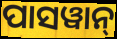
ପାସୱାନ୍